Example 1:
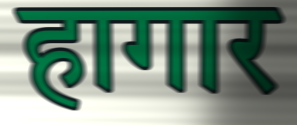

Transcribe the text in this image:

हागार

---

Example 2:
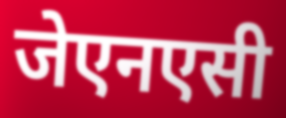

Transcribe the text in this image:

जेएनएसी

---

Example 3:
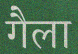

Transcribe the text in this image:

गैला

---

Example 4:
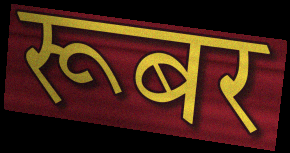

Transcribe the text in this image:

रूबर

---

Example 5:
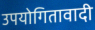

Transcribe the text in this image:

उपयोगितावादी